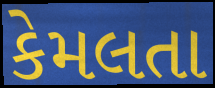
કેમલતા